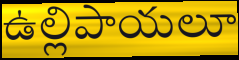
ఉల్లిపాయలూ